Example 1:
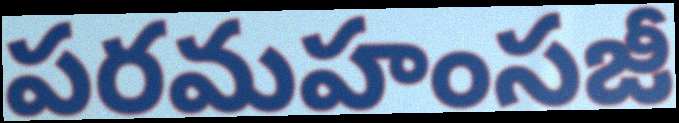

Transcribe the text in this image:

పరమహంసజీ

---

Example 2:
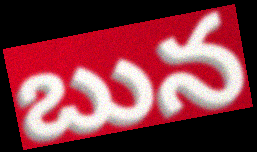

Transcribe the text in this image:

బున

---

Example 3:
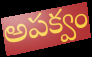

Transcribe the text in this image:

అపక్వం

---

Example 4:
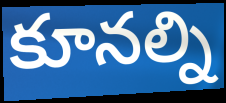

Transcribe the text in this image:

కూనల్ని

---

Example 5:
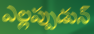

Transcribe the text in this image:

ఎల్లప్పుడున్